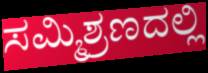
ಸಮ್ಮಿಶ್ರಣದಲ್ಲಿ